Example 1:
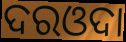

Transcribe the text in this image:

ଦରଓଦା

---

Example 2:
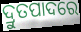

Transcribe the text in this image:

ଦ୍ରୁତପାଦରେ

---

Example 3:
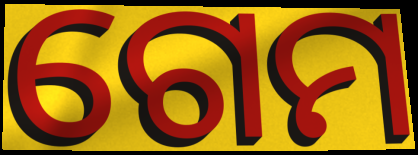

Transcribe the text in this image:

ଗେମ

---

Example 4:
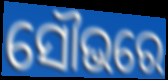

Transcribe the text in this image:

ସୌଭରେ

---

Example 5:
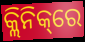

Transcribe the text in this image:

କ୍ଲିନିକ୍‌ରେ